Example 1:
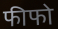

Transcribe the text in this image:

फीफो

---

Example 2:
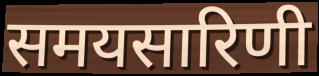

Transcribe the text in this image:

समयसारिणी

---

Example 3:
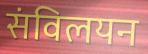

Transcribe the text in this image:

संविलयन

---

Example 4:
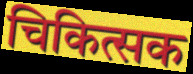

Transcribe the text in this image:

चिकित्‍सक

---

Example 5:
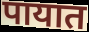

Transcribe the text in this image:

पायात